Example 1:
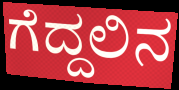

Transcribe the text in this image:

ಗೆದ್ದಲಿನ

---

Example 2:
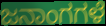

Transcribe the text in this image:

ಜನಾಂಗಗಳೆ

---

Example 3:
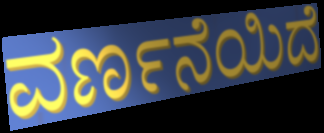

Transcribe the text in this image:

ವರ್ಣನೆಯಿದೆ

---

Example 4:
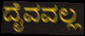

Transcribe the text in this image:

ದೈವವಲ್ಲ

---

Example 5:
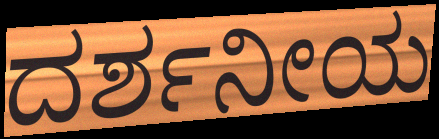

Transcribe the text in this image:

ದರ್ಶನೀಯ